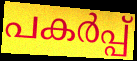
പകർപ്പ്